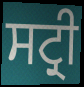
ਸਟ੍ਰੀ